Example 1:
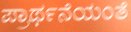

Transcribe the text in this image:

ಪ್ರಾರ್ಥನೆಯಂತೆ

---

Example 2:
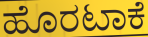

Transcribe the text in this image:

ಹೊರಟಾಕೆ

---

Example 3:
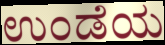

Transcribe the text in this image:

ಉಂಡೆಯ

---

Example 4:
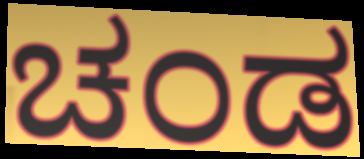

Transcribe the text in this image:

ಚಂಡ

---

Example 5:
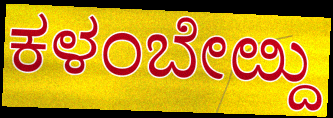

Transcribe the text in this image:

ಕಳಂಬೇೞ್ದು